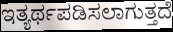
ಇತ್ಯರ್ಥಪಡಿಸಲಾಗುತ್ತದೆ